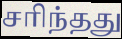
சரிந்தது